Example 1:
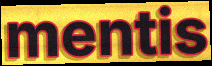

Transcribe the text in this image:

mentis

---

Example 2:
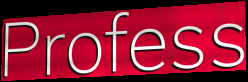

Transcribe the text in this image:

Profess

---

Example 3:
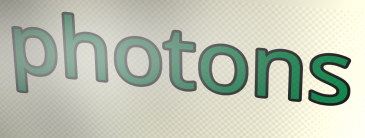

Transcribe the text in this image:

photons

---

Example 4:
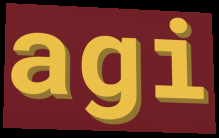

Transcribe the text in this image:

agi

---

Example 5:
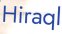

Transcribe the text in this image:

Hiraql